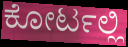
ಕೋರ್ಟಲ್ಲಿ